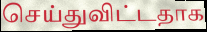
செய்துவிட்டதாக